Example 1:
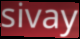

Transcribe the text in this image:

sivay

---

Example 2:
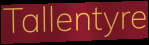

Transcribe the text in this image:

Tallentyre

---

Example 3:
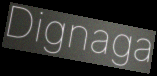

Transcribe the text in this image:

Dignaga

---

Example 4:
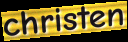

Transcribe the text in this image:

christen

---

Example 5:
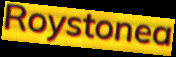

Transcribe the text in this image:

Roystonea